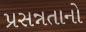
પ્રસન્નતાનો